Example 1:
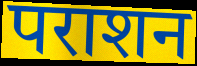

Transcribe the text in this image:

पराशन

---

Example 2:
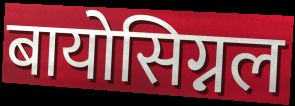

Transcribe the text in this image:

बायोसिग्नल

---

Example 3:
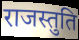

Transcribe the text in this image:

राजस्तुति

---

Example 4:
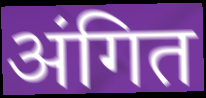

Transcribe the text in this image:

अंगित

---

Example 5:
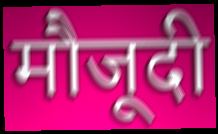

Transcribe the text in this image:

मौजूदी